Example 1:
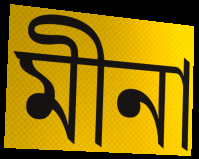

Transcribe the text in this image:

মীনা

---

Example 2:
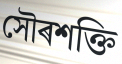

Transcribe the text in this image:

সৌৰশক্তি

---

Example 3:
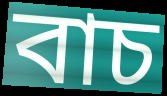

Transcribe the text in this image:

বাচ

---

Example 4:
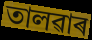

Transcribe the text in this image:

তালৱাৰ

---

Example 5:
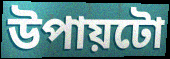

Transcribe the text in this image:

উপায়টো